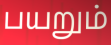
பயறும்